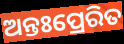
ଅନ୍ତଃପ୍ରେରିତ